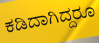
ಕಡಿದಾಗಿದ್ದರೂ